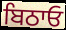
ਬਿਠਾਓ